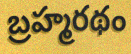
బ్రహ్మరథం